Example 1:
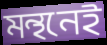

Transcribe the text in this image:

মন্থনেই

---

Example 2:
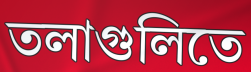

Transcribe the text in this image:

তলাগুলিতে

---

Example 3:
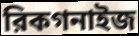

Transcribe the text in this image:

রিকগনাইজ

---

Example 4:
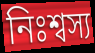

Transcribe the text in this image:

নিঃশ্বস্য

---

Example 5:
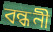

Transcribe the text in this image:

বন্ধনী